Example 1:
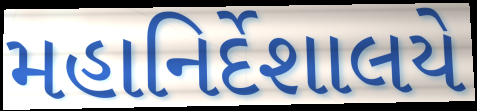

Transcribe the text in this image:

મહાનિર્દેશાલયે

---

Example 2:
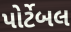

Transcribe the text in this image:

પોર્ટેબલ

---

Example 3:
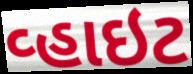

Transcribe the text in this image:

વ્હાઇટ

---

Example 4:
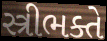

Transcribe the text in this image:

સ્ત્રીભક્તે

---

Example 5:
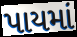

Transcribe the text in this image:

પાયમાં